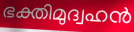
ഭക്തിമുദ്വഹൻ